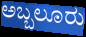
ಅಬ್ಬಲೂರು